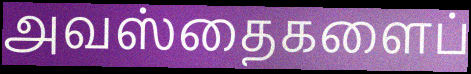
அவஸ்தைகளைப்